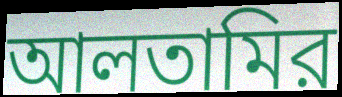
আলতামির